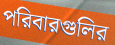
পরিবারগুলির